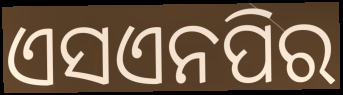
ଏସଏନପିର